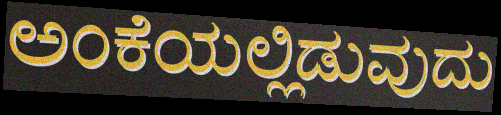
ಅಂಕೆಯಲ್ಲಿಡುವುದು